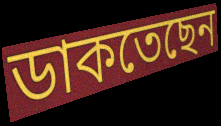
ডাকতেছেন